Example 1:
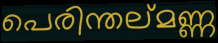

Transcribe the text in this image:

പെരിന്തല്മണ്ണ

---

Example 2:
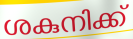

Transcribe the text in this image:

ശകുനിക്ക്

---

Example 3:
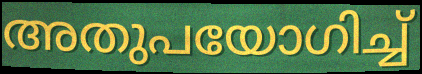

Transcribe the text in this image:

അതുപയോഗിച്ച്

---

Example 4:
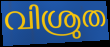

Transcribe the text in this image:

വിശ്രുത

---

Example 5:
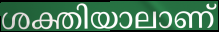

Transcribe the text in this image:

ശക്തിയാലാണ്